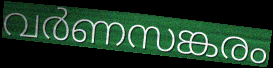
വർണസങ്കരം